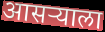
आसऱ्याला